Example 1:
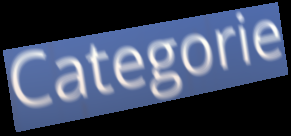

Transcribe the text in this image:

Categorie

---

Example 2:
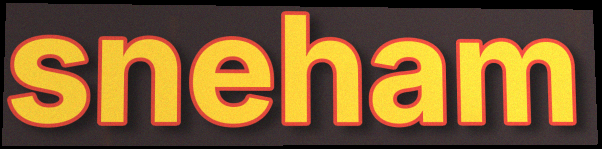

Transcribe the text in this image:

sneham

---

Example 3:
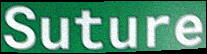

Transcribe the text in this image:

Suture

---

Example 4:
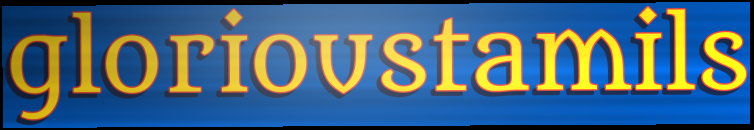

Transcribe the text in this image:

glorioustamils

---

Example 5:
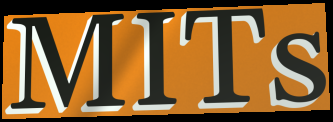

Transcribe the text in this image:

MITs